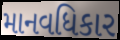
માનવધિકાર